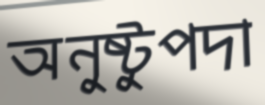
অনুষ্টুপদা